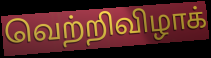
வெற்றிவிழாக்